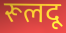
रूलदू